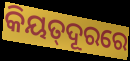
କିୟତ୍‌ଦୂରରେ